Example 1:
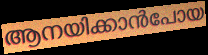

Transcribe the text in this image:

ആനയിക്കാൻപോയ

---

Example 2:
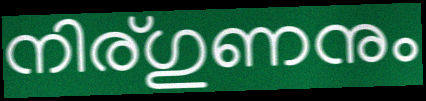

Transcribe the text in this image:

നിര്ഗുണനും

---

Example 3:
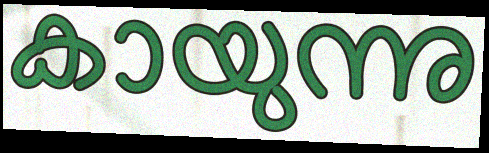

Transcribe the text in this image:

കായുന്നു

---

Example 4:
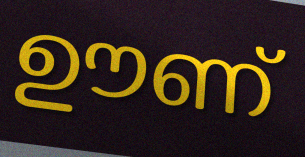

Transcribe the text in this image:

ഊണ്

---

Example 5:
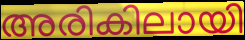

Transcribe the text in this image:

അരികിലായി